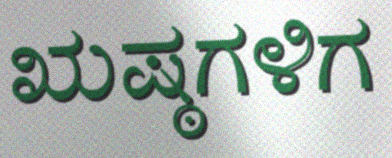
ಋಷ್ಠಗಳಿಗ